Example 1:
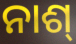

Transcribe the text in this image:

ନାଶ୍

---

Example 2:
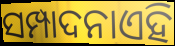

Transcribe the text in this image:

ସମ୍ପାଦନାଏହି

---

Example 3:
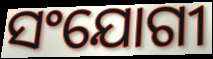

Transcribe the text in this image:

ସଂଯୋଗୀ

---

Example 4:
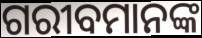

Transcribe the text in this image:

ଗରୀବମାନଙ୍କ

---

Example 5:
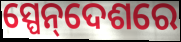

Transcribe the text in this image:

ସ୍ପେନ୍‌ଦେଶରେ